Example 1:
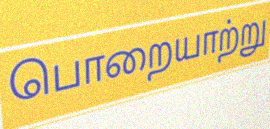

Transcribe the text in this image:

பொறையாற்று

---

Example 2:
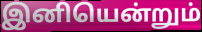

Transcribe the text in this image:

இனியென்றும்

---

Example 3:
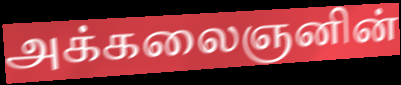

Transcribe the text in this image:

அக்கலைஞனின்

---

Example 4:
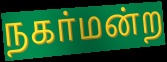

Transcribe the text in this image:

நகர்மன்ற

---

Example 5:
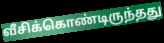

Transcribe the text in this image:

வீசிக்கொண்டிருந்தது